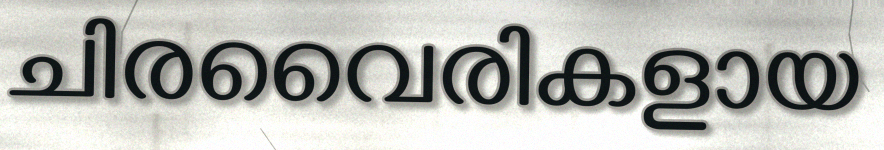
ചിരവൈരികളായ